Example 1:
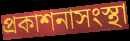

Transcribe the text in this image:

প্রকাশনাসংস্থা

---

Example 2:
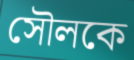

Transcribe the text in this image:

সৌলকে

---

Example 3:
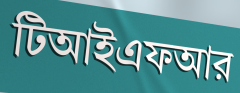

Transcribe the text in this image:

টিআইএফআর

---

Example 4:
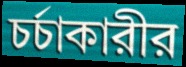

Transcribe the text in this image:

চর্চাকারীর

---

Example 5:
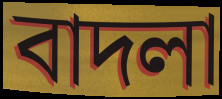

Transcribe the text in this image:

বাদলা